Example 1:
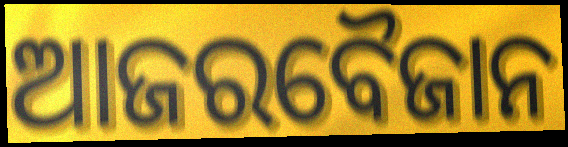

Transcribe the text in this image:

ଆଜରବୈଜାନ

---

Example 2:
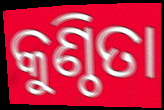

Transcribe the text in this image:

କୁଣ୍ଠିତା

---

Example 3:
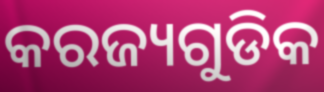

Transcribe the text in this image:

କରଜ୍ୟଗୁଡିକ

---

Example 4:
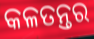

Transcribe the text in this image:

କଳତନ୍ତର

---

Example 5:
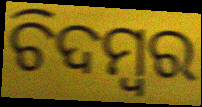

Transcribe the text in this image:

ଚିଦମ୍ବର